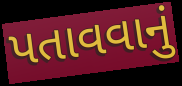
પતાવવાનું